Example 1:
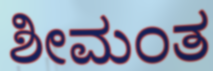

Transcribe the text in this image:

ಶೀಮಂತ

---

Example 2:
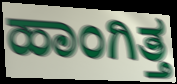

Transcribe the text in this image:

ಹಾಂಗಿತ್ತ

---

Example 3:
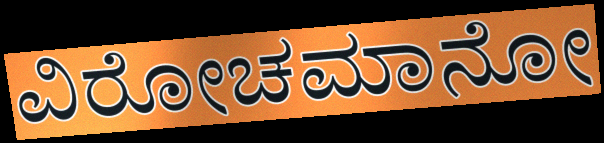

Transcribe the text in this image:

ವಿರೋಚಮಾನೋ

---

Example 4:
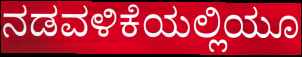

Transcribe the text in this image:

ನಡವಳಿಕೆಯಲ್ಲಿಯೂ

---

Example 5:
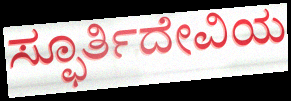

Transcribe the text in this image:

ಸ್ಫೂರ್ತಿದೇವಿಯ